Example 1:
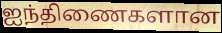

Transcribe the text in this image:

ஐந்திணைகளான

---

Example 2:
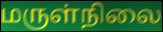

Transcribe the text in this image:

மருள்நிலை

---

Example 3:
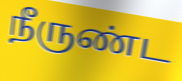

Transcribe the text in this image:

நீருண்ட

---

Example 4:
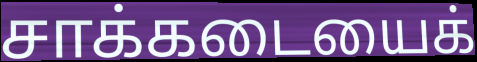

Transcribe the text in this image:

சாக்கடையைக்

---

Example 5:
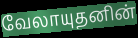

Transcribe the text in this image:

வேலாயுதனின்